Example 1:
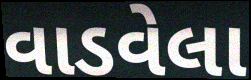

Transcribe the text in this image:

વાડવેલા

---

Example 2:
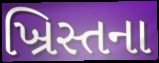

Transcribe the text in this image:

ખ્રિસ્તના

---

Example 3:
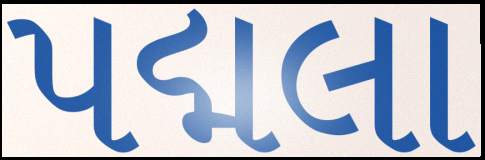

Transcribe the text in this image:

પદ્મલા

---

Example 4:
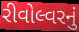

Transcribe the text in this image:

રીવોલ્વરનું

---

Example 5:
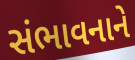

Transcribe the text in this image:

સંભાવનાને